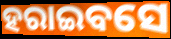
ହରାଇବସେ